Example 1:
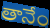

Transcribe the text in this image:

తానేం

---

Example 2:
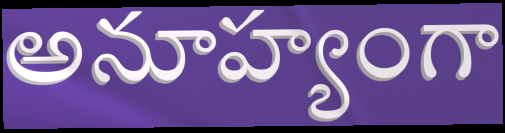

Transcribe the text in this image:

అనూహ్యంగా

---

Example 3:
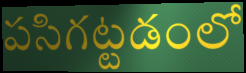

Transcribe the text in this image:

పసిగట్టడంలో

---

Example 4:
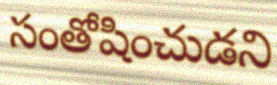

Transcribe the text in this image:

సంతోషించుడని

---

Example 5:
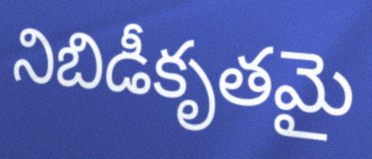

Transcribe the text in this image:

నిబిడీకృతమై